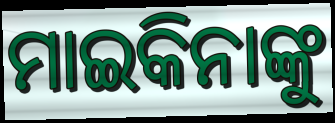
ମାଇକିନାଙ୍କୁ